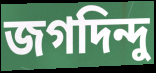
জগদিন্দু